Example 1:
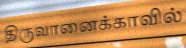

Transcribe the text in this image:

திருவானைக்காவில்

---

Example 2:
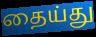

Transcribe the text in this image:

தைய்து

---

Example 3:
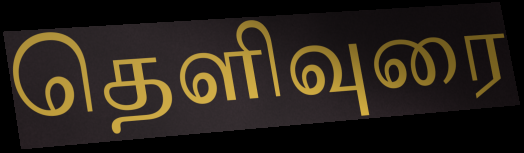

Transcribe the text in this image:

தெளிவுரை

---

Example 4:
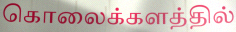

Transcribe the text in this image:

கொலைக்களத்தில்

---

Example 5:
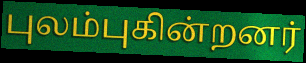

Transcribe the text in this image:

புலம்புகின்றனர்